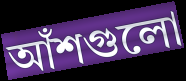
আঁশগুলো